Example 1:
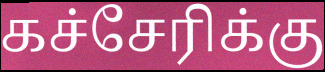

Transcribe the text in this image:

கச்சேரிக்கு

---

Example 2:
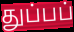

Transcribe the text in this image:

துப்பப்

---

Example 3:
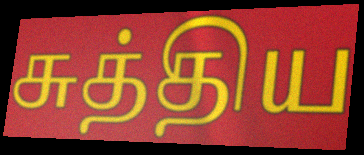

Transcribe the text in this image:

சுத்திய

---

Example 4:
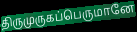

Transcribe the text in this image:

திருமுருகப்பெருமானே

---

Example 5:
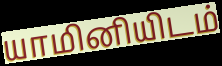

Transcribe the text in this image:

யாமினியிடம்